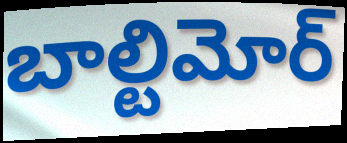
బాల్టిమోర్